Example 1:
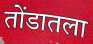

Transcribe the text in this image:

तोंडातला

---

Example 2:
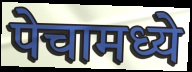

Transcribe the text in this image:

पेचामध्ये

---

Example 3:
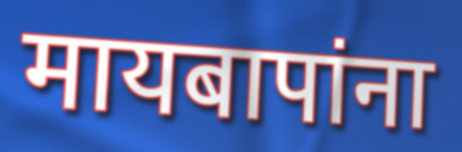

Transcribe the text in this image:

मायबापांना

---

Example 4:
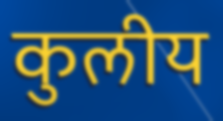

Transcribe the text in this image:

कुलीय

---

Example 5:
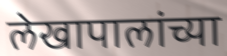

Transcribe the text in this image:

लेखापालांच्या